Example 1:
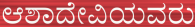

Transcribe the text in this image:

ಆಶಾದೇವಿಯವರು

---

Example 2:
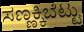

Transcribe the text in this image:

ಸಣ್ಣಕ್ಕಿಬೆಟ್ಟು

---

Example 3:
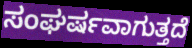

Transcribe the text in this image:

ಸಂಘರ್ಷವಾಗುತ್ತದೆ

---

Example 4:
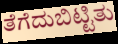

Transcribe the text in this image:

ತೆಗೆದುಬಿಟ್ಟಿತು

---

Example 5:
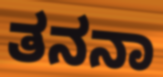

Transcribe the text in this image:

ತನನಾ